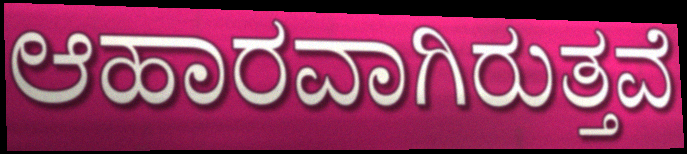
ಆಹಾರವಾಗಿರುತ್ತವೆ